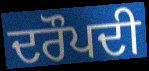
ਦਰੌਪਦੀ